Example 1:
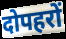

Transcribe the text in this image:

दोपहरों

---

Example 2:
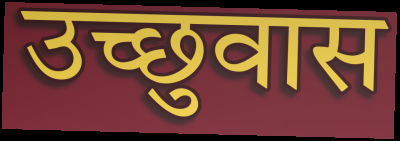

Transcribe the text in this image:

उच्छुवास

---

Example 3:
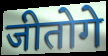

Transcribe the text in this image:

जीतोगे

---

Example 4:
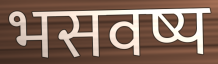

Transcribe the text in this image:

भसवष्य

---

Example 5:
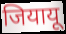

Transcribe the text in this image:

जियायू